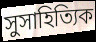
সুসাহিত্যিক